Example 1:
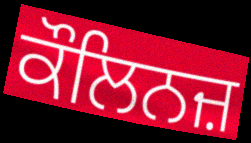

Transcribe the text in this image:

ਕੌਲਿਨਜ਼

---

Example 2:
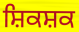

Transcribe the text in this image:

ਸ਼ਿਕਸ਼ਕ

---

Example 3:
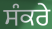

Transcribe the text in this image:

ਸੰਕਰੇ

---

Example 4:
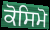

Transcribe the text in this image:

ਕੋਸਿਮੋ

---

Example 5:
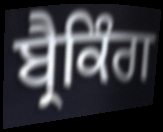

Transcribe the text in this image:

ਬ੍ਰੈਕਿੰਗ